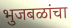
भुजबळांचा